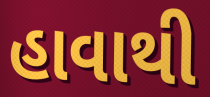
હાવાથી